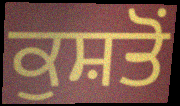
ਕੁਸ਼ਤੋਂ